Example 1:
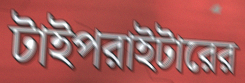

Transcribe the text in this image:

টাইপরাইটারের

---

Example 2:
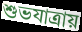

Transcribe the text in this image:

শুভযাত্রায়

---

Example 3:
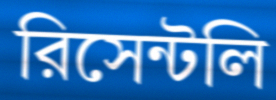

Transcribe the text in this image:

রিসেন্টলি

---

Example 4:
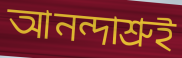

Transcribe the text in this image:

আনন্দাশ্রুই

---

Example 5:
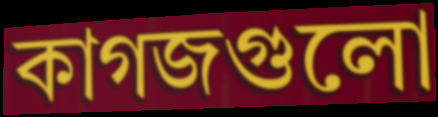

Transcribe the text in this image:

কাগজগুলো